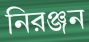
নিরঞ্জন